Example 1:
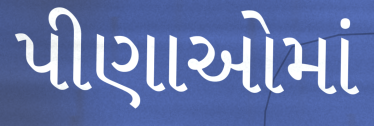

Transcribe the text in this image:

પીણાઓમાં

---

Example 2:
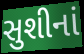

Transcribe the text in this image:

સુશીનાં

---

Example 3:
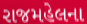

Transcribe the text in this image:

રાજમહેલના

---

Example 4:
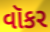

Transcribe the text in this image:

વૉકર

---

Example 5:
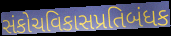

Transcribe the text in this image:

સંકોચવિકાસપ્રતિબંધક